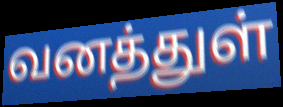
வனத்துள்